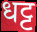
धट्ट